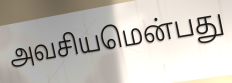
அவசியமென்பது